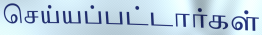
செய்யப்பட்டார்கள்